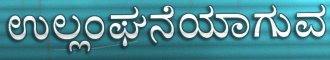
ಉಲ್ಲಂಘನೆಯಾಗುವ